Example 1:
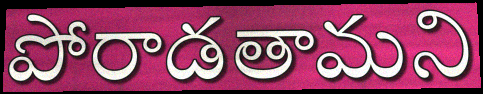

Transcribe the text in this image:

పోరాడతామని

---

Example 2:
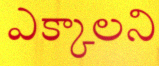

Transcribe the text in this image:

ఎక్కాలని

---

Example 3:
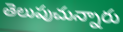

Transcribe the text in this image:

తెలుపుచున్నారు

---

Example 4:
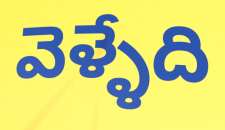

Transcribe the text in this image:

వెళ్ళేది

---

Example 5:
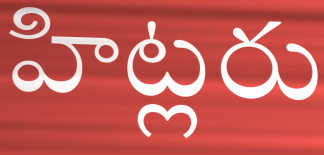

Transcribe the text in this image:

హిట్లరు